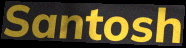
Santosh